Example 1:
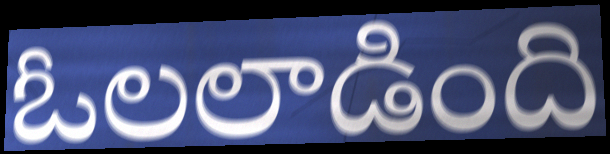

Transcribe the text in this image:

ఓలలాడింది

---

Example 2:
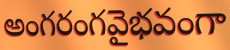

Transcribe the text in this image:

అంగరంగవైభవంగా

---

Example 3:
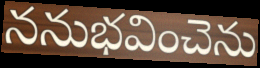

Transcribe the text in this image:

ననుభవించెను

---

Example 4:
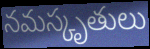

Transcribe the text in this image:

నమస్కృతులు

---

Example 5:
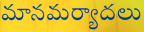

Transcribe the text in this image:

మానమర్యాదలు